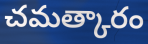
చమత్కారం